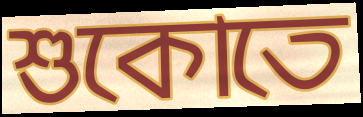
শুকোতে